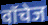
वॉचेज